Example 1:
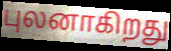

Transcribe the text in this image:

புலனாகிறது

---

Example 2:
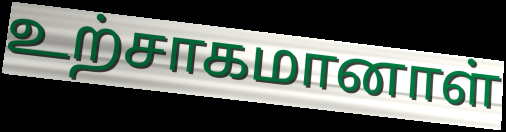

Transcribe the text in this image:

உற்சாகமானாள்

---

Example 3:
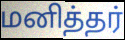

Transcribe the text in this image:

மனித்தர்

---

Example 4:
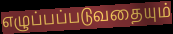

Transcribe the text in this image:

எழுப்பப்படுவதையும்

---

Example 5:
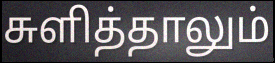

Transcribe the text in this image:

சுளித்தாலும்